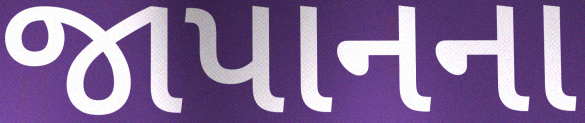
જાપાનના